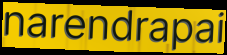
narendrapai